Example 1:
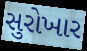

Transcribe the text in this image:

સુરોખાર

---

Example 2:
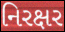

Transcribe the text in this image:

નિરક્ષર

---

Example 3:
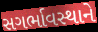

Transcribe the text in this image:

સગર્ભાવસ્થાને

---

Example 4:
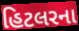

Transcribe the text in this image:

હિટલરના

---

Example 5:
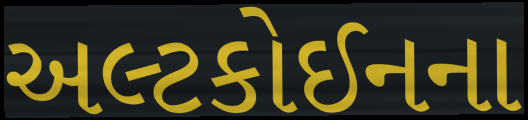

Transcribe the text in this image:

અલ્ટકોઈનના